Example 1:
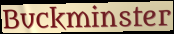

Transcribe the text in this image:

Buckminster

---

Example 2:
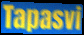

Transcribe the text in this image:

Tapasvi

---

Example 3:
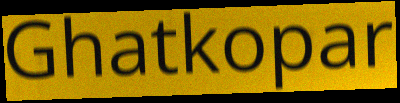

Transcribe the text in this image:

Ghatkopar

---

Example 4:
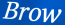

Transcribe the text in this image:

Brow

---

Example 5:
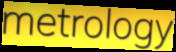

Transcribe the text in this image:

metrology